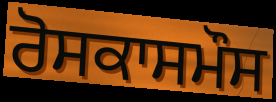
ਰੋਸਕਾਸਮੌਸ